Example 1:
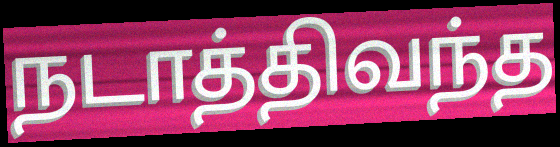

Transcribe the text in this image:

நடாத்திவந்த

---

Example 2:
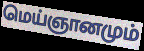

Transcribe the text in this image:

மெய்ஞானமும்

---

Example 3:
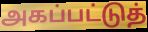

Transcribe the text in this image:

அகப்பட்டுத்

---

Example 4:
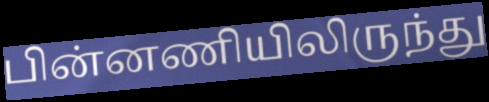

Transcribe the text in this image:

பின்னணியிலிருந்து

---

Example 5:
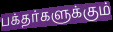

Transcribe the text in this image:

பக்தர்களுக்கும்